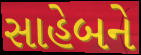
સાહેબને